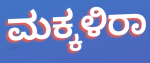
ಮಕ್ಕಳಿರಾ